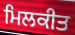
ਮਿਲਕੀਤ